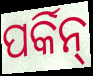
ପର୍କିନ୍